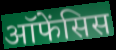
ऑफेंसिस